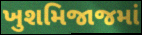
ખુશમિજાજમાં